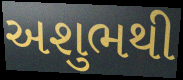
અશુભથી